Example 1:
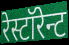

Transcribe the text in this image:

रेस्टॉरेन्ट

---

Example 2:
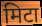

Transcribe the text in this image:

मिटा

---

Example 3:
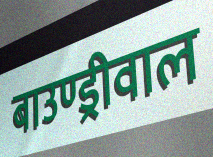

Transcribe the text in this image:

बाउण्ड्रीवाल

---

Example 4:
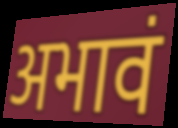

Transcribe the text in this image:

अभावं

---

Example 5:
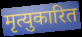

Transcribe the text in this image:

मृत्युकारित